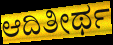
ಆದಿತೀರ್ಥ